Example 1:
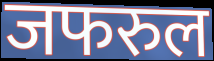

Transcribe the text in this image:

जफरुल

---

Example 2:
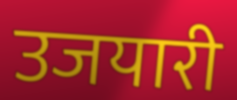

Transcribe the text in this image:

उजयारी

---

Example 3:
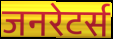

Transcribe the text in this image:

जनरेटर्स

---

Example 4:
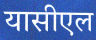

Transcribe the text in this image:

यासीएल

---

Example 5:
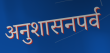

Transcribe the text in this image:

अनुशासनपर्व